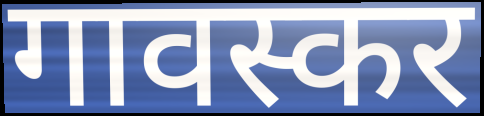
गावस्कर